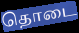
தொடை